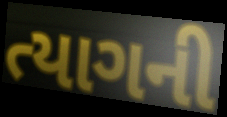
ત્યાગની